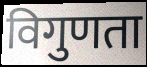
विगुणता